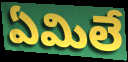
ఏమిలే